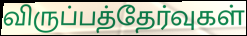
விருப்பத்தேர்வுகள்